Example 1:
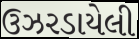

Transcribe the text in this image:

ઉઝરડાયેલી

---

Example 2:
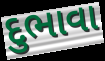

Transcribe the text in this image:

દુભાવા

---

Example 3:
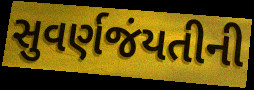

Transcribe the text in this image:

સુવર્ણજંયતીની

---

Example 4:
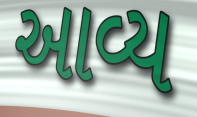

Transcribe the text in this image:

આવ્ય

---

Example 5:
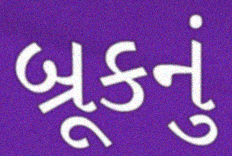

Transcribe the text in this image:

બ્રૂકનું